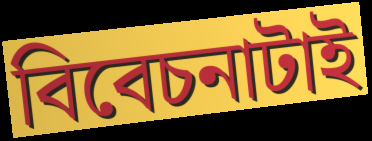
বিবেচনাটাই